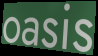
oasis